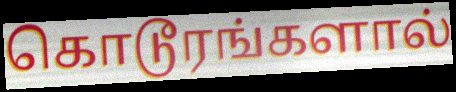
கொடூரங்களால்